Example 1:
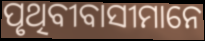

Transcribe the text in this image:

ପୃଥିବୀବାସୀମାନେ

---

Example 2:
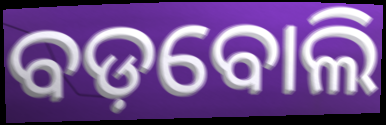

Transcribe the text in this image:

ବଡ଼ବୋଲି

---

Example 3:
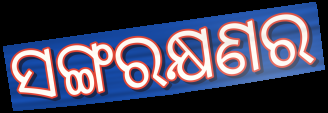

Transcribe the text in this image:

ସଙ୍ଗରକ୍ଷଣର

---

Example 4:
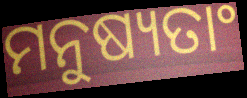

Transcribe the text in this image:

ମନୁଷ୍ୟତାଂ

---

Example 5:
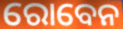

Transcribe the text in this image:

ରୋବେନ